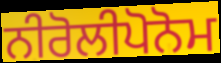
ਨੀਰੋਲੀਪੋਨੋਮ